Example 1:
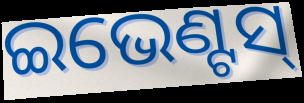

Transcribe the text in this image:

ଇଭେଣ୍ଟସ୍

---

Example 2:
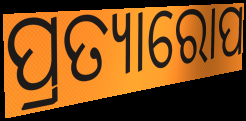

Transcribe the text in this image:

ପ୍ରତ୍ୟାରୋପ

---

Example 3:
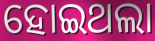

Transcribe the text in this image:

ହୋଇଥଲା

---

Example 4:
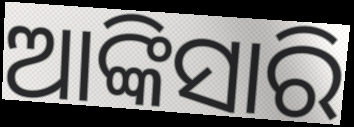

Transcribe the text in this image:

ଆଙ୍କିସାରି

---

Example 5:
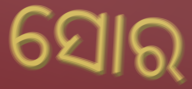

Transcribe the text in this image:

ସୋର